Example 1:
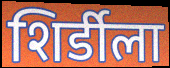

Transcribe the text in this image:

शिर्डीला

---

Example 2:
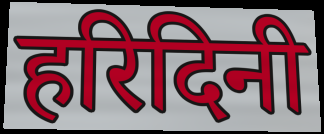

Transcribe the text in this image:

हरिदिनी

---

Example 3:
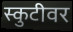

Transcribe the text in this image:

स्कुटीवर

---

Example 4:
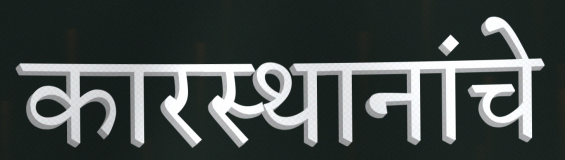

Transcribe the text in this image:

कारस्थानांचे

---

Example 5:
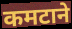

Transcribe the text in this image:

कमटाने